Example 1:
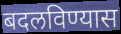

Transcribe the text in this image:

बदलविण्यास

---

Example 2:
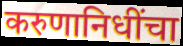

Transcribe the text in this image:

करुणानिधींचा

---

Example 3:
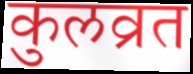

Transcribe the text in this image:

कुलव्रत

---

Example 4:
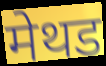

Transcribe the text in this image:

मेथड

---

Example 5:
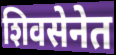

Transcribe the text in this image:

शिवसेनेत